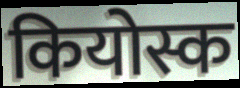
कियोस्क